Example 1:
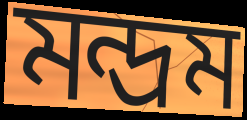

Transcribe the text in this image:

মন্দ্রম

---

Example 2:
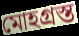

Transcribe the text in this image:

মোহগ্রস্ত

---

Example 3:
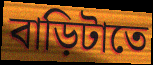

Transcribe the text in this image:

বাড়িটাতে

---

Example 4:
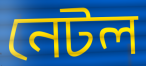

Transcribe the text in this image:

নেটল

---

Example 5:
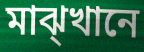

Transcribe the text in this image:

মাঝ্খানে